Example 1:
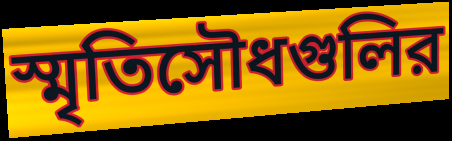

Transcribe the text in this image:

স্মৃতিসৌধগুলির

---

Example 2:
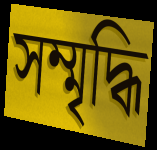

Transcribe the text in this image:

সম্মৃদ্ধি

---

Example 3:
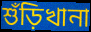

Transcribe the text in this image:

শুঁড়িখানা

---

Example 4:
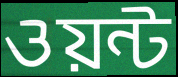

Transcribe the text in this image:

ওয়ন্ট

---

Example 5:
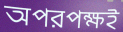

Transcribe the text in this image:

অপরপক্ষই